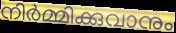
നിർമ്മിക്കുവാനും